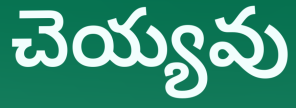
చెయ్యవు